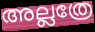
അല്ലത്രേ